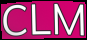
CLM